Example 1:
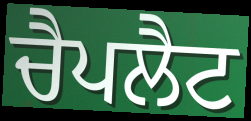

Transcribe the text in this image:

ਚੈਪਲੈਟ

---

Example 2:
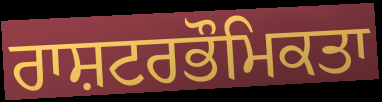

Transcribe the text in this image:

ਰਾਸ਼ਟਰਭੌਮਿਕਤਾ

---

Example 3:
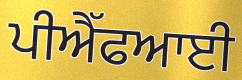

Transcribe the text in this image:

ਪੀਐੱਫਆਈ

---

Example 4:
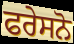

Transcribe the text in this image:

ਫਰੇਸਨੋ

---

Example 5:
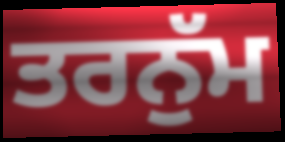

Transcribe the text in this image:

ਤਰਨੁੱਮ